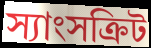
স্যাংসক্রিট